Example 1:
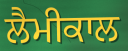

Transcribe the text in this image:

ਲੈਮੀਕਾਲ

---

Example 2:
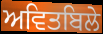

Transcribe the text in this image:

ਅਵਿਤਬਿਲੇ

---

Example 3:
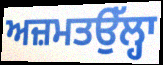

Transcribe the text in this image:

ਅਜ਼ਮਤਉੱਲ੍ਹਾ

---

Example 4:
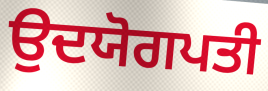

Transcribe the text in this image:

ਉਦਯੋਗਪਤੀ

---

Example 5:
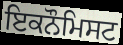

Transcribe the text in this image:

ਇਕਨੌਮਿਸਟ